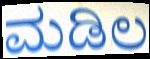
ಮಡಿಲ